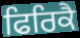
ਫਿਰਿਕੈ